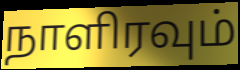
நாளிரவும்